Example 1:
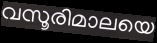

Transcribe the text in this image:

വസൂരിമാലയെ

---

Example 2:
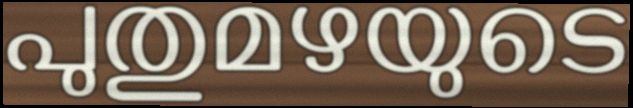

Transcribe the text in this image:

പുതുമഴയുടെ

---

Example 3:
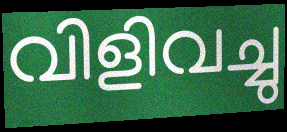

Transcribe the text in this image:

വിളിവച്ചു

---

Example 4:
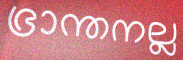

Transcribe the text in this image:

ഭ്രാന്തനല്ല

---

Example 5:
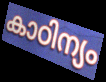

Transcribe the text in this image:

കാഠിന്യം